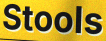
Stools